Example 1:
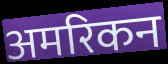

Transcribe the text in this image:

अमरिकन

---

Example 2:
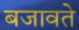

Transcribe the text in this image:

बजावते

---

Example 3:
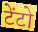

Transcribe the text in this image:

टेंटो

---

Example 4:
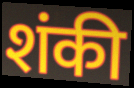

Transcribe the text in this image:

शंकी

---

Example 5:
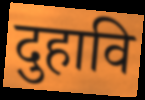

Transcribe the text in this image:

दुहावि